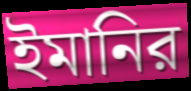
ইমানির